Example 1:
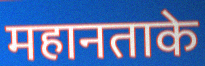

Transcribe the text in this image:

महानताके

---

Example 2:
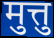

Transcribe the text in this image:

मुत्तु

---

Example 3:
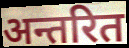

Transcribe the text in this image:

अन्तरित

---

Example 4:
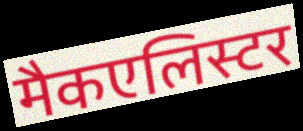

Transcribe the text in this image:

मैकएलिस्टर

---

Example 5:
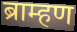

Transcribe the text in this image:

ब्राम्हण